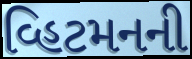
વ્હિટમનની